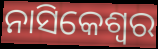
ନାସିକେଶ୍ୱର